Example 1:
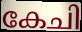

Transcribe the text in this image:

കേചി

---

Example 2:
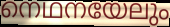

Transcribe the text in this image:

നെഥനയേലും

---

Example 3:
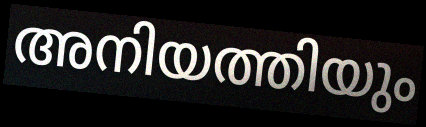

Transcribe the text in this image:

അനിയത്തിയും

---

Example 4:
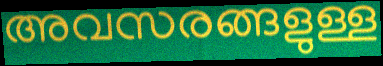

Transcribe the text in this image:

അവസരങ്ങളുള്ള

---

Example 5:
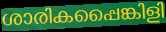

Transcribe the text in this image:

ശാരികപ്പൈങ്കിളി